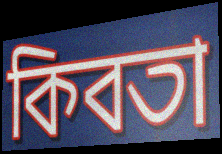
কিবতা